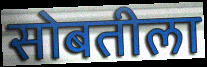
सोबतीला